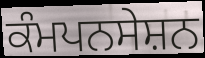
ਕੰਮਪਨਸੇਸ਼ਨ